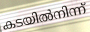
കടയിൽനിന്ന്